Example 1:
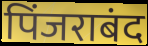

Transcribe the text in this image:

पिंजराबंद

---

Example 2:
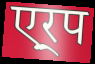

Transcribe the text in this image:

एर्प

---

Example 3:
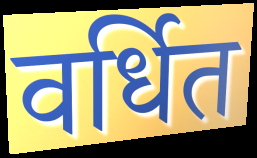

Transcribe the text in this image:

वर्धित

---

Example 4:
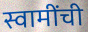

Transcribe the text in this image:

स्वामींची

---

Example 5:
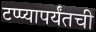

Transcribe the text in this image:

टप्प्यापर्यंतची